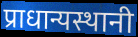
प्राधान्यस्थानी